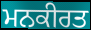
ਮਨਕੀਰਤ